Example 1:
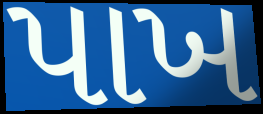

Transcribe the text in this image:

પાખ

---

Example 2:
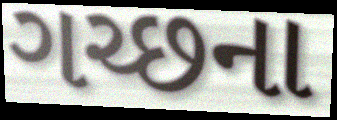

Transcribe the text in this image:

ગચ્છના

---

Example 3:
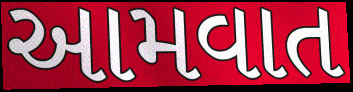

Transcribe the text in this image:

આમવાત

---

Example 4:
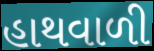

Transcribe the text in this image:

હાથવાળી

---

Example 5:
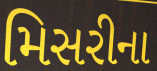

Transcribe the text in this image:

મિસરીના